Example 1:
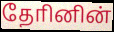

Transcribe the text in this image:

தேரினின்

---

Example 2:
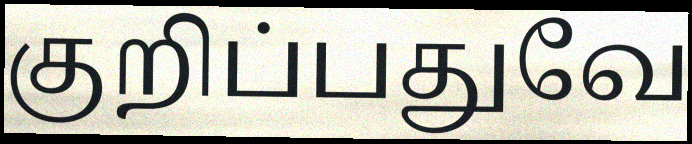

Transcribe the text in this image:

குறிப்பதுவே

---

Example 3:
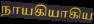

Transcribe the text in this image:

நாயகியாகிய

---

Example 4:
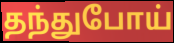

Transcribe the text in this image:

தந்துபோய்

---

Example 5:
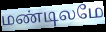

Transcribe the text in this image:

மண்டிலமே